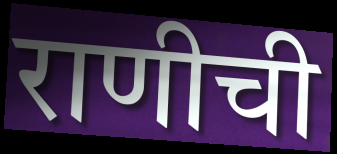
राणीची